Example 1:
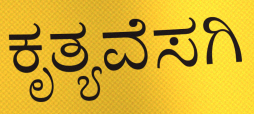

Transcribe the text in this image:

ಕೃತ್ಯವೆಸಗಿ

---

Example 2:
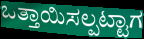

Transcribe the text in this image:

ಒತ್ತಾಯಿಸಲ್ಪಟ್ಟಾಗ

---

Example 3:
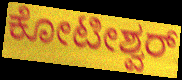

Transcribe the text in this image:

ಕೋಟೀಶ್ವರ್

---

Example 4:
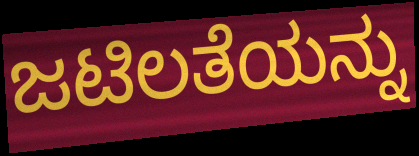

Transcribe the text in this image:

ಜಟಿಲತೆಯನ್ನು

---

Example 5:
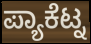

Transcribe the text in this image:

ಪ್ಯಾಕೆಟ್ನ